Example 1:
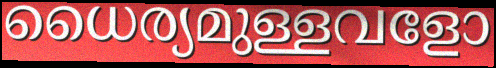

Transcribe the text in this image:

ധൈര്യമുള്ളവളോ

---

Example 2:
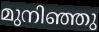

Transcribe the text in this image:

മുനിഞ്ഞു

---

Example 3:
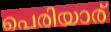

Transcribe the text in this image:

പെരിയാര്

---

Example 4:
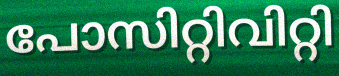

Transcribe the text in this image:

പോസിറ്റിവിറ്റി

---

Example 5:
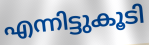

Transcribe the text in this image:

എന്നിട്ടുകൂടി